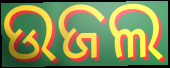
ଉଜଲ